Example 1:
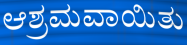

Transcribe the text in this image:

ಆಶ್ರಮವಾಯಿತು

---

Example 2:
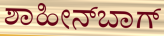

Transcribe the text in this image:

ಶಾಹೀನ್‌ಬಾಗ್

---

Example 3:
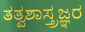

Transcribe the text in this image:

ತತ್ವಶಾಸ್ತ್ರಜ್ಞರ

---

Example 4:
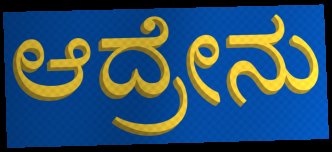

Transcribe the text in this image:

ಆದ್ರೇನು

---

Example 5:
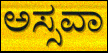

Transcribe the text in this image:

ಅಸ್ಸವಾ